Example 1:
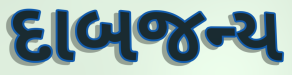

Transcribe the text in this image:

દાબજન્ય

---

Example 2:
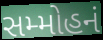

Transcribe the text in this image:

સમ્મોહનં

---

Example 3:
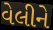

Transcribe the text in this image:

વેલીને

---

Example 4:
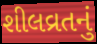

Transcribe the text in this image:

શીલવ્રતનું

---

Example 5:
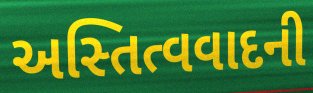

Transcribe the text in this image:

અસ્તિત્વવાદની